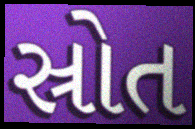
સ્રોત